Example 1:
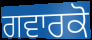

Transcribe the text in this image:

ਗਵਾਰਕੋ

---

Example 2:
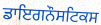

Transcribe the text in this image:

ਡਾਇਗਨੌਸਟਿਕਸ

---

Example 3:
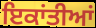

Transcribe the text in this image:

ਇਕਾਂਤੀਆਂ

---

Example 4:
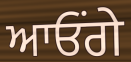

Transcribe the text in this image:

ਆਓਂਗੇ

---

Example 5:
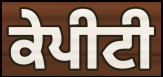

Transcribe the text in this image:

ਕੇਪੀਟੀ